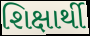
શિક્ષાર્થી